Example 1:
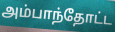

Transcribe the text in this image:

அம்பாந்தோட்ட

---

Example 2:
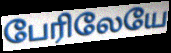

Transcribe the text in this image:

பேரிலேயே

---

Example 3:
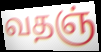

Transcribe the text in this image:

வதஞ்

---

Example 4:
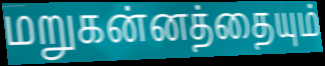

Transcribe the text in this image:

மறுகன்னத்தையும்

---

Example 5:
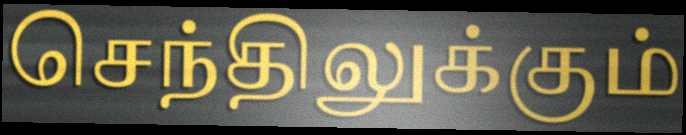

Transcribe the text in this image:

செந்திலுக்கும்